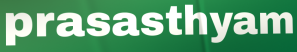
prasasthyam